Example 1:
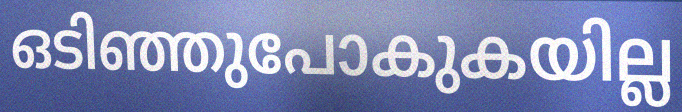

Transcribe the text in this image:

ഒടിഞ്ഞുപോകുകയില്ല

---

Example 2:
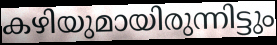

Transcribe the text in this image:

കഴിയുമായിരുന്നിട്ടും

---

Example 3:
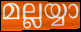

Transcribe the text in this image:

മല്ലയ്യാ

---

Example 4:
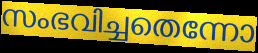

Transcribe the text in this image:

സംഭവിച്ചതെന്നോ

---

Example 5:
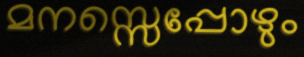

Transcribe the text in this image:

മനസ്സെപ്പോഴും